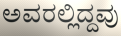
ಅವರಲ್ಲಿದ್ದವು